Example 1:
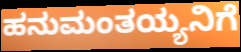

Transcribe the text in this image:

ಹನುಮಂತಯ್ಯನಿಗೆ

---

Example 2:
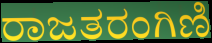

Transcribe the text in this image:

ರಾಜತರಂಗಿಣಿ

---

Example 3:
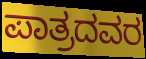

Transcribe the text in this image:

ಪಾತ್ರದವರ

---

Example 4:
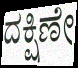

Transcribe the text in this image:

ದಕ್ಷಿಣೇ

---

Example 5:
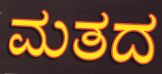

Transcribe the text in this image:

ಮತದ